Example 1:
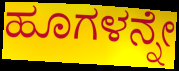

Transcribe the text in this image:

ಹೂಗಳನ್ನೇ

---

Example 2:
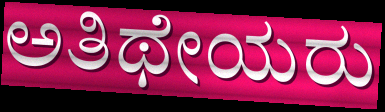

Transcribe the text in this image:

ಅತಿಥೇಯರು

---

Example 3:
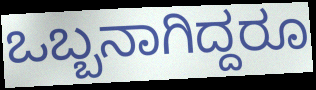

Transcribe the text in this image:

ಒಬ್ಬನಾಗಿದ್ದರೂ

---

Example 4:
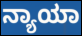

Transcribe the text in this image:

ನ್ಯಾಯಾ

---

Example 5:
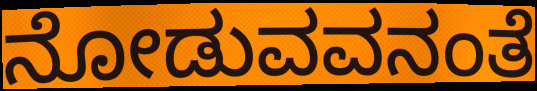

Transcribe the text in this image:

ನೋಡುವವನಂತೆ